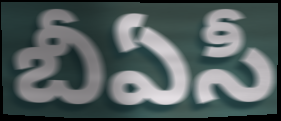
బీఏసీ